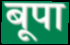
बूपा